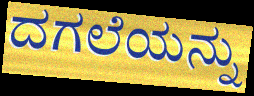
ದಗಲೆಯನ್ನು